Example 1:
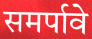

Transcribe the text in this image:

समर्पावे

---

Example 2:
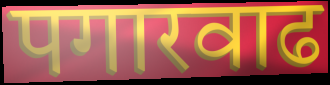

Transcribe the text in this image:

पगारवाढ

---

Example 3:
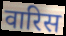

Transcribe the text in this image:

वारिस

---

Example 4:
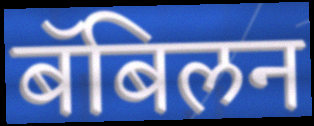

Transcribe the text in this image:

बॅबिलन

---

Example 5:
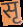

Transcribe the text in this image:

सृ